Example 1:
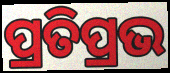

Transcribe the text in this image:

ପ୍ରତିପ୍ରଭ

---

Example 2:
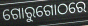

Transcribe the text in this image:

ଗୋରୁଗୋଠରେ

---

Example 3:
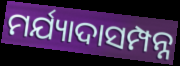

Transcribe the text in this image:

ମର୍ଯ୍ୟାଦାସମ୍ପନ୍ନ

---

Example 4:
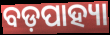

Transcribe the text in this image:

ବଡ଼ପାହ୍ୟା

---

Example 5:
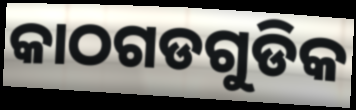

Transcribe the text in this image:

କାଠଗଡଗୁଡିକ